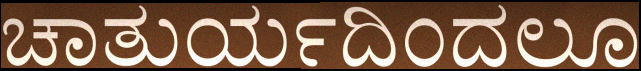
ಚಾತುರ್ಯದಿಂದಲೂ